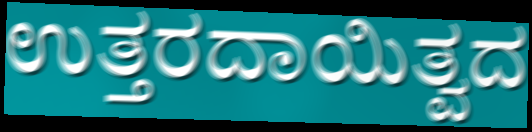
ಉತ್ತರದಾಯಿತ್ವದ